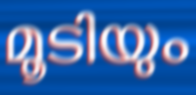
മൂടിയും